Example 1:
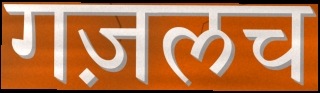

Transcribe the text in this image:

गज़लच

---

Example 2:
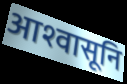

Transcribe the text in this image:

आश्वासूनि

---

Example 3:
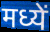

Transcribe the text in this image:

मध्यें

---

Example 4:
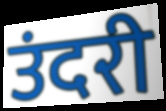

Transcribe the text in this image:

उंदरी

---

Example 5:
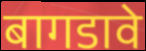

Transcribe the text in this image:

बागडावे